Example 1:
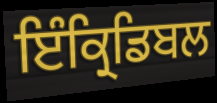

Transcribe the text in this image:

ਇੰਕ੍ਰਿਡਿਬਲ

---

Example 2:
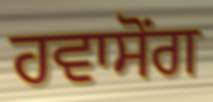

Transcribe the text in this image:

ਹਵਾਸੋਂਗ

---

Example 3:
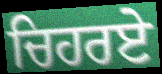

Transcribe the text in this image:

ਚਿਹਰਏ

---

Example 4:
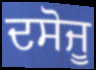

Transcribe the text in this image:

ਦਸੋਜੂ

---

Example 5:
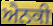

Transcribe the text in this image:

ਐਨਕੀ